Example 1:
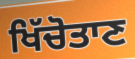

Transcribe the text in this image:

ਖਿੱਚੋਤਾਣ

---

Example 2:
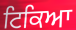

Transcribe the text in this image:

ਟਿਕਿਆ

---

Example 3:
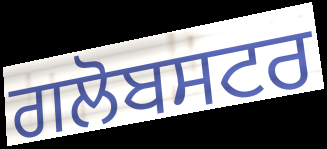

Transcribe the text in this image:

ਗਲੋਬਸਟਰ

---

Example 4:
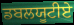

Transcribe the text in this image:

ਡਬਲਯੂਟੀਏ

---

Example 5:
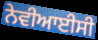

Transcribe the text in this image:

ਨੇਵੀਆਈਸੀ